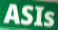
ASIs